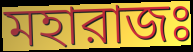
মহারাজঃ